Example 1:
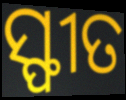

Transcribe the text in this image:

ସ୍ଫୀତ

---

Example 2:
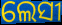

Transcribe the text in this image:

ଲେସୀ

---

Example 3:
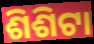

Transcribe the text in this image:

ଶିଶିଟା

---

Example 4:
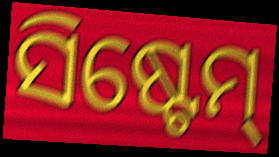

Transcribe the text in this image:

ସିଷ୍ଟେମ୍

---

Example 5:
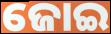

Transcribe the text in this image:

ଜୋଇ